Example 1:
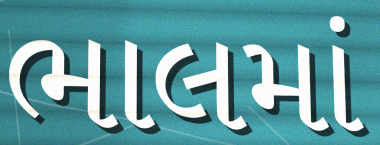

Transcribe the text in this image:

ભાલમાં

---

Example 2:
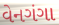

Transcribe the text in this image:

વેનગંગા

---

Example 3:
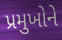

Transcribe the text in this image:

પ્રમુખોને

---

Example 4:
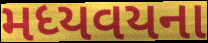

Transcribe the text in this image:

મધ્યવયના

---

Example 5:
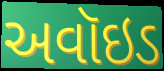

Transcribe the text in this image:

અવૉઇડ